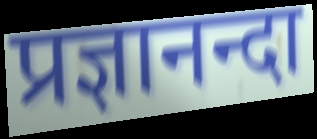
प्रज्ञानन्दा